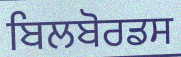
ਬਿਲਬੋਰਡਸ